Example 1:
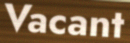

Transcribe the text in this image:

Vacant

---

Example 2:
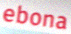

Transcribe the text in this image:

ebona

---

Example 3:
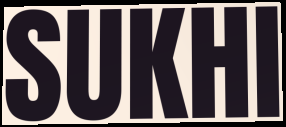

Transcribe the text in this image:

SUKHI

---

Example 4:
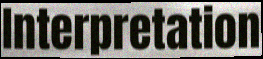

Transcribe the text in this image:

Interpretation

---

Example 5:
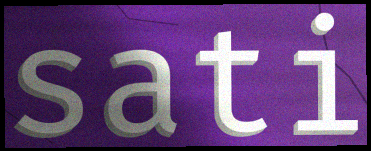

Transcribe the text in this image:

sati